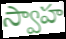
స్వాహ